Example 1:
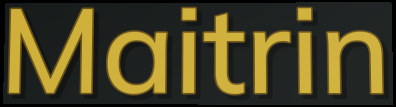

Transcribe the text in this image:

Maitrin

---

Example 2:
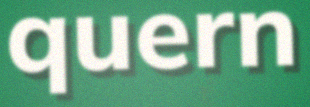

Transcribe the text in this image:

quern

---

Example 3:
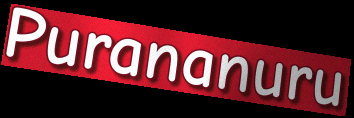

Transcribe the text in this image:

Purananuru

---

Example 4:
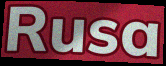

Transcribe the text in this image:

Rusa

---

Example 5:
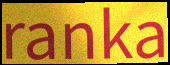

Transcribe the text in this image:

ranka